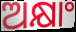
ଅକ୍ଷାଂ